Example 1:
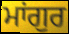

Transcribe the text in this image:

ਮਾਂਗੁਰ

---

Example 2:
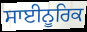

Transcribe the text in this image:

ਸਾਈਨੂਰਿਕ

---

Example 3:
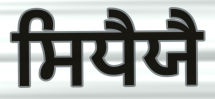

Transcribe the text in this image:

ਸਿਧੈਯੈ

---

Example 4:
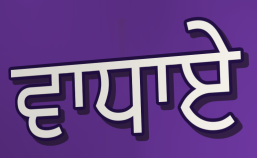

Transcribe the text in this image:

ਵਾਧਾਏ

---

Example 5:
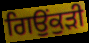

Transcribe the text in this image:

ਗਿਉਂਕੁੜੀ